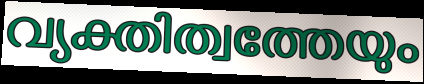
വ്യക്തിത്വത്തേയും